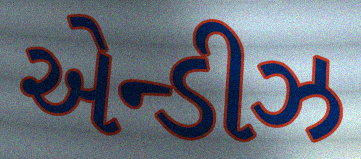
એન્ડીઝ